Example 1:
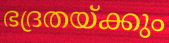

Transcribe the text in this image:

ഭദ്രതയ്ക്കും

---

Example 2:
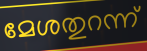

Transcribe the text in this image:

മേശതുറന്ന്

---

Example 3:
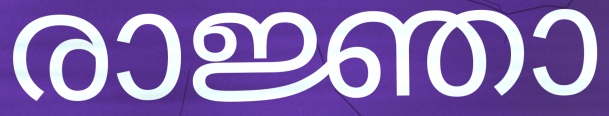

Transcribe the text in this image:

രാജ്ഞാ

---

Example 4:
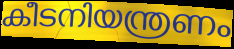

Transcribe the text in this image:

കീടനിയന്ത്രണം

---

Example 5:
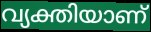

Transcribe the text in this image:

വ്യക്തിയാണ്